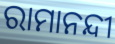
ରାମାନନ୍ଦୀ